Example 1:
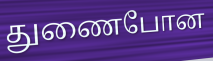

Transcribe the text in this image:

துணைபோன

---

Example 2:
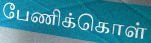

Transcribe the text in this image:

பேணிக்கொள்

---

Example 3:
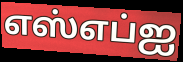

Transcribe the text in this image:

எஸ்எப்ஐ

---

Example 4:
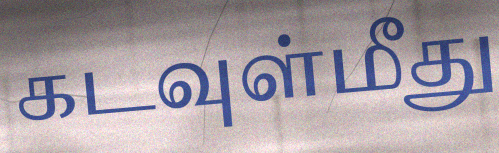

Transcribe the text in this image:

கடவுள்மீது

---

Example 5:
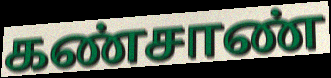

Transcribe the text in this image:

கண்சாண்